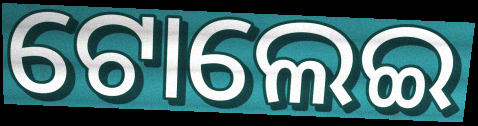
ଟୋଲେଇ